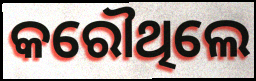
କରୌଥିଲେ